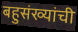
बहुसंख्यांची